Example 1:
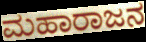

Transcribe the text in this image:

ಮಹಾರಾಜನ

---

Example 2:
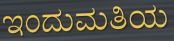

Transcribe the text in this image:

ಇಂದುಮತಿಯ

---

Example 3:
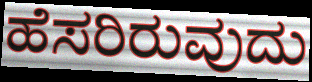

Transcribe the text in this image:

ಹೆಸರಿರುವುದು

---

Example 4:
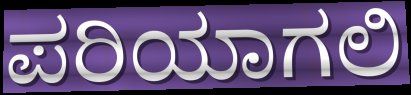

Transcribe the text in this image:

ಪರಿಯಾಗಲಿ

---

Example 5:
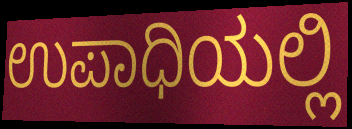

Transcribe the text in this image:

ಉಪಾಧಿಯಲ್ಲಿ